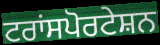
ਟਰਾਂਸਪੋਰਟੇਸ਼ਨ